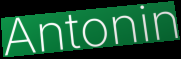
Antonin